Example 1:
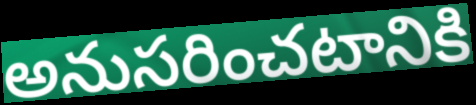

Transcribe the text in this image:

అనుసరించటానికి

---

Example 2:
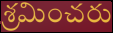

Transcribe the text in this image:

శ్రమించరు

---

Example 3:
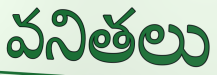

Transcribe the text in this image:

వనితలు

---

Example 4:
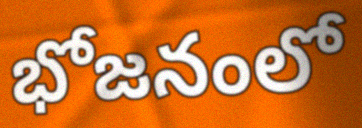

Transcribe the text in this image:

భోజనంలో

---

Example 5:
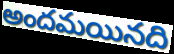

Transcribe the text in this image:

అందమయినది